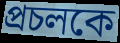
প্রচলকে